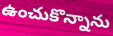
ఉంచుకొన్నాను